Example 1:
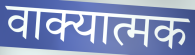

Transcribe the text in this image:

वाक्यात्मक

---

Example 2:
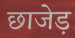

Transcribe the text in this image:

छाजेड़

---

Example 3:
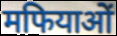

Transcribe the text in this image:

मफियाओं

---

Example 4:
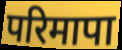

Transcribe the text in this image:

परिमापा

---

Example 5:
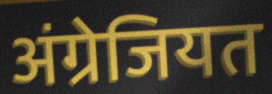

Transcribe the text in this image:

अंग्रेजियत